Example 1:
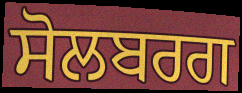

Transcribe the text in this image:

ਸੋਲਬਰਗ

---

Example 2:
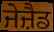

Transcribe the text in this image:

ਜੇਜ਼ੈਡ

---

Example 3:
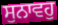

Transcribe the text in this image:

ਸੁਨਾਵਹੁ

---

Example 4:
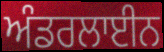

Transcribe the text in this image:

ਅੰਡਰਲਾਈਨ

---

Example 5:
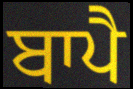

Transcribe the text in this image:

ਬਾਪੈ